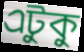
এটুকু